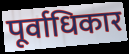
पूर्वाधिकार